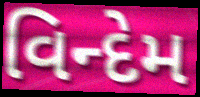
વિન્દેમ